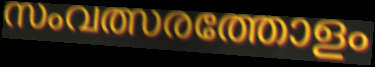
സംവത്സരത്തോളം